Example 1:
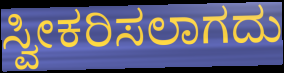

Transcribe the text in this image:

ಸ್ವೀಕರಿಸಲಾಗದು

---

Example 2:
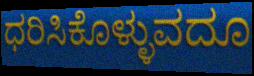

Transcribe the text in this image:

ಧರಿಸಿಕೊಳ್ಳುವದೂ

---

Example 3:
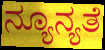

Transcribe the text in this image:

ನ್ಯೂನ್ಯತೆ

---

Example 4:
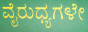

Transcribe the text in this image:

ವೈರುಧ್ಯಗಳೇ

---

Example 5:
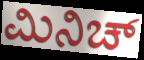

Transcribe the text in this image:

ಮಿನಿಚ್